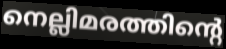
നെല്ലിമരത്തിന്റെ